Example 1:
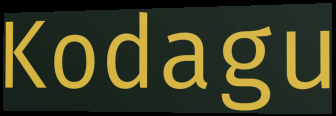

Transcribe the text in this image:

Kodagu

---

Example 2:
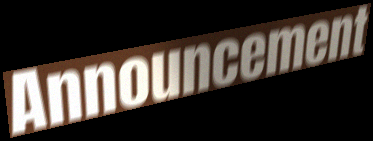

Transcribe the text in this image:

Announcement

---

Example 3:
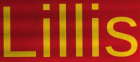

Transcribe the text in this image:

Lillis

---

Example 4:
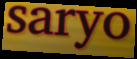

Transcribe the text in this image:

saryo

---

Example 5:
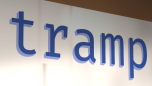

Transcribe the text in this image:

tramp